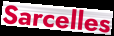
Sarcelles